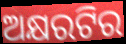
ଅକ୍ଷରଟିର